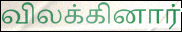
விலக்கினார்